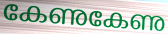
കേണുകേണു